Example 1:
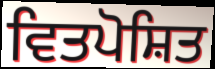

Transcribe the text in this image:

ਵਿਤਪੋਸ਼ਿਤ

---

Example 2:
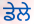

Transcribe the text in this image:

ਡੇਲੇ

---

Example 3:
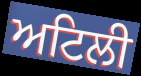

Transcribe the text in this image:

ਅਟਿਲੀ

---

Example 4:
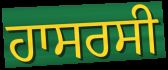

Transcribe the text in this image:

ਹਾਸਰਸੀ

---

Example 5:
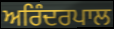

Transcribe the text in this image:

ਅਰਿੰਦਰਪਾਲ